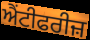
ਐਂਟੀਫਰੀਜ਼